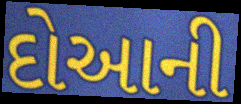
દોઆની